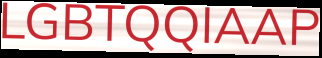
LGBTQQIAAP